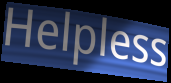
Helpless